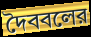
দৈববলের